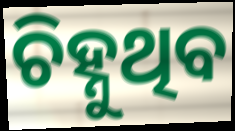
ଚିହ୍ନୁଥିବ